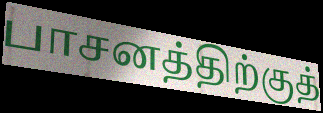
பாசனத்திற்குத்